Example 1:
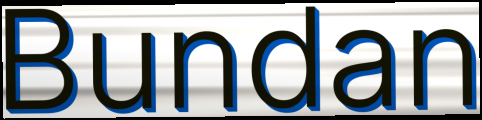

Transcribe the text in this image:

Bundan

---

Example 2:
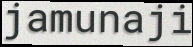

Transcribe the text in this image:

jamunaji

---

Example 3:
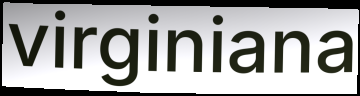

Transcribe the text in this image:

virginiana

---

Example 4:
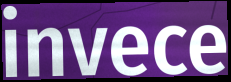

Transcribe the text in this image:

invece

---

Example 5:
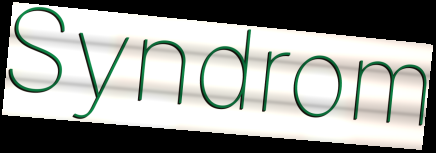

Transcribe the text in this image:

Syndrom